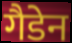
गैडेन